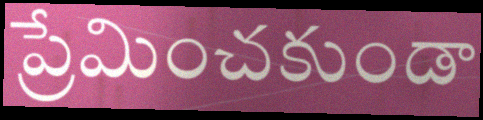
ప్రేమించకుండా